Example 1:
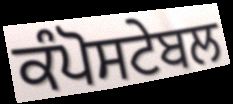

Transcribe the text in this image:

ਕੰਪੋਸਟੇਬਲ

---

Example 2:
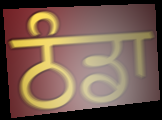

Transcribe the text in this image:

ਠੰਡਾ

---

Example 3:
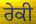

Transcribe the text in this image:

ਰੇਕੀ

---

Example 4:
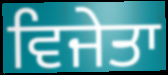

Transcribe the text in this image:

ਵਿਜੇਤਾ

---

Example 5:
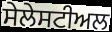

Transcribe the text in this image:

ਸੇਲੇਸਟੀਅਲ